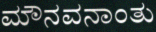
ಮೌನವನಾಂತು